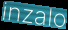
inzalo